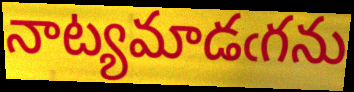
నాట్యమాడఁగను